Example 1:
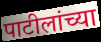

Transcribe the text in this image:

पाटीलांच्या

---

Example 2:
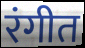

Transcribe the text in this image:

रंगीत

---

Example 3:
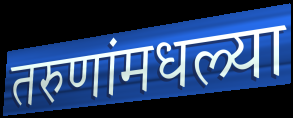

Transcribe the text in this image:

तरुणांमधल्या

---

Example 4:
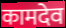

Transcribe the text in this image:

कामदेव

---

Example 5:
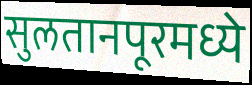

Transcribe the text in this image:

सुलतानपूरमध्ये